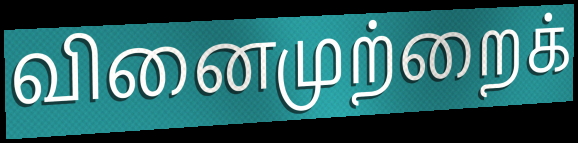
வினைமுற்றைக்